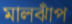
মালঝাঁপ